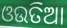
ଓଉତିଆ